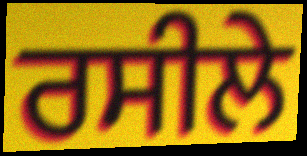
ਰਸੀਲੇ